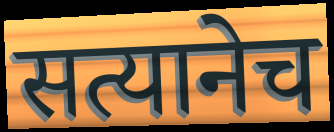
सत्यानेच